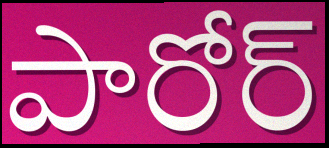
పారోర్